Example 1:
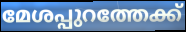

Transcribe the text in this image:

മേശപ്പുറത്തേക്ക്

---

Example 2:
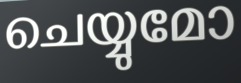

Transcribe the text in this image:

ചെയ്യുമോ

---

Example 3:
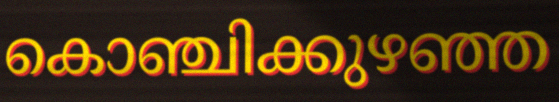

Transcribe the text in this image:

കൊഞ്ചിക്കുഴഞ്ഞ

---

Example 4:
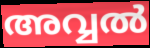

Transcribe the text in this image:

അവ്വൽ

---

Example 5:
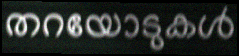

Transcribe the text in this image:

തറയോടുകൾ